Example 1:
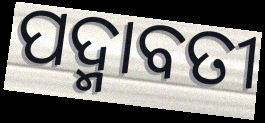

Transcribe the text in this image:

ପଦ୍ମାବତୀ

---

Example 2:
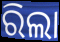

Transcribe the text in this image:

ରିଲା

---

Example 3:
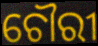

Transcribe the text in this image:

ଚୌରୀ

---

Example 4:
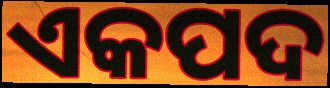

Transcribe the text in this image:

ଏକପଦ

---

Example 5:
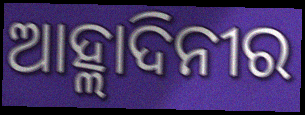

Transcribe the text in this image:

ଆହ୍ଲାଦିନୀର